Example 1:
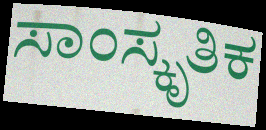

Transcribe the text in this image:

ಸಾಂಸ್ಕೃತಿಕ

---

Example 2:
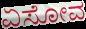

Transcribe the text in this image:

ಏಸೋವ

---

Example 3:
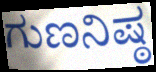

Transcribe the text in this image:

ಗುಣನಿಷ್ಠ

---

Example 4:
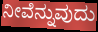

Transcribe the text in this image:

ನೀವೆನ್ನುವುದು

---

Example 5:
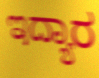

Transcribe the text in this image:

ಇದ್ಯಾರ